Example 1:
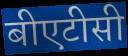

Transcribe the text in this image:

बीएटीसी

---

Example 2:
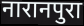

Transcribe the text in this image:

नारानपुरा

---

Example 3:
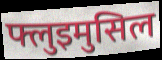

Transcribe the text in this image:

फ्लुइमुसिल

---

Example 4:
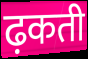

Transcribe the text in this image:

ढ़कती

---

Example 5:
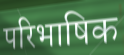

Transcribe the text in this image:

परिभाषिक